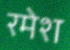
रमेश